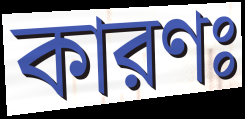
কারণঃ